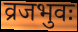
व्रजभुवः